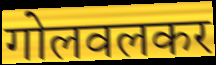
गोलवलकर